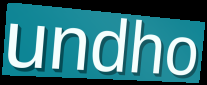
undho